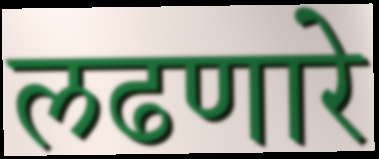
लढणारे